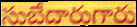
సుబేదారుగారు